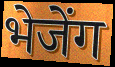
भेजेंग